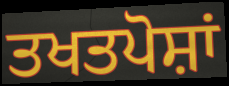
ਤਖਤਪੋਸ਼ਾਂ